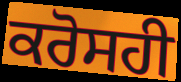
ਕਰੋਸਹੀ